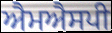
ਐਮਐਸਪੀ